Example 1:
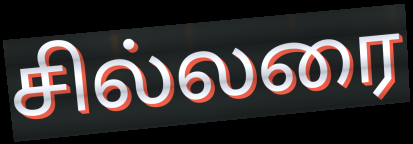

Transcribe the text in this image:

சில்லரை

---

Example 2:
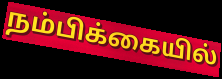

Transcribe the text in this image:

நம்பிக்கையில்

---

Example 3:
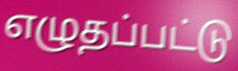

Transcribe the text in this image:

எழுதப்பட்டு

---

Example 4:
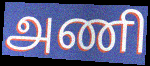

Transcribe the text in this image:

அணி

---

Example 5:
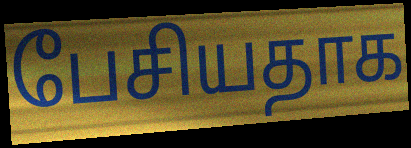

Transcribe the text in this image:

பேசியதாக